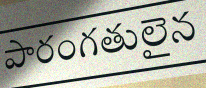
పారంగతులైన